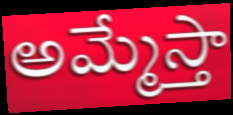
అమ్మేస్తా